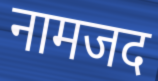
नामजद